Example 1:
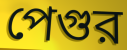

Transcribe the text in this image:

পেগুর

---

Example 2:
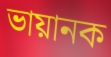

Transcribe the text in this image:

ভায়ানক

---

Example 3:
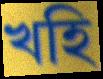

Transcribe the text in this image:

খহি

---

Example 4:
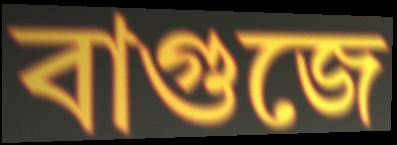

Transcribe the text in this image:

বাগুজে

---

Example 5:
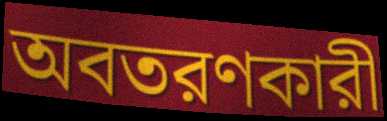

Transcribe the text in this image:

অবতরণকারী